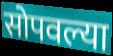
सोपवल्या